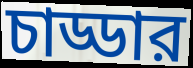
চাড্ডার